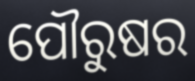
ପୌରୁଷର